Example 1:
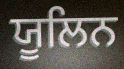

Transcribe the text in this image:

ਯੂਲਿਨ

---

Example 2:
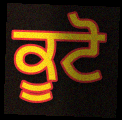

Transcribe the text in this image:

ਕੂਟੋ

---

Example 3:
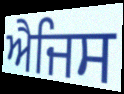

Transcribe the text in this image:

ਐਜਿਸ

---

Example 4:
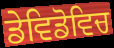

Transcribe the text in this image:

ਡੇਵਿਡੋਵਿਚ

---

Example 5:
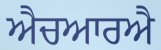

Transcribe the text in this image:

ਐਚਆਰਐ